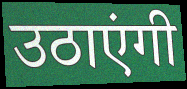
उठाएंगी